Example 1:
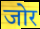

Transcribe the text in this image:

जोर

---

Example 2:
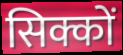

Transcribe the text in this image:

सिक्‍कों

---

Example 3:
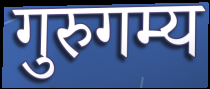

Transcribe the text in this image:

गुरुगम्य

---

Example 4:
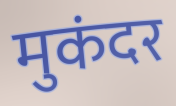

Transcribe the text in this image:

मुकंदर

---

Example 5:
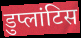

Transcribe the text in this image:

डुप्लांटिस